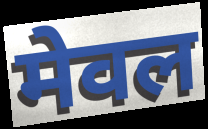
मेवल